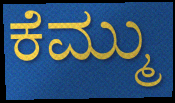
ಕೆಮ್ಮು